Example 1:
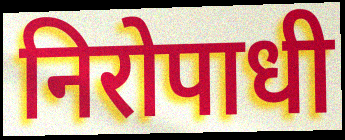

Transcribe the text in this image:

निरोपाधी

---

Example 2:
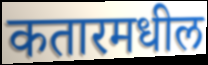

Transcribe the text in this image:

कतारमधील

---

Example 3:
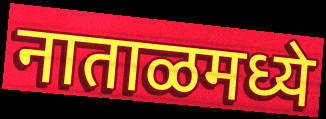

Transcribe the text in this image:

नाताळमध्ये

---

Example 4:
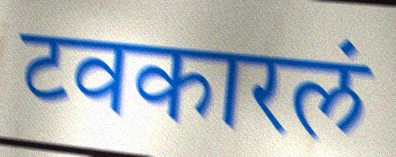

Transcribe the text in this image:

टवकारलं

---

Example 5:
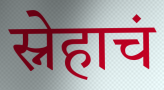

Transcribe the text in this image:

स्नेहाचं